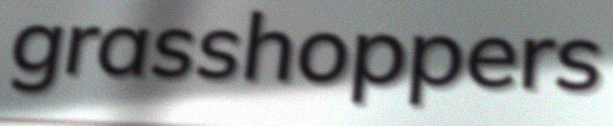
grasshoppers